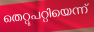
തെറ്റുപറ്റിയെന്ന്